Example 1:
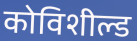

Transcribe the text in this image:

कोविशील्ड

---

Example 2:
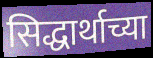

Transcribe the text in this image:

सिद्धार्थाच्या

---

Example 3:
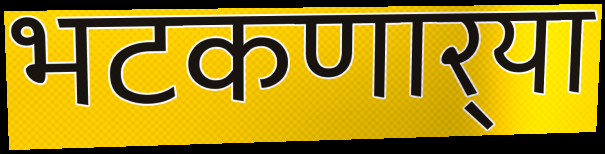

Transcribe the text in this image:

भटकणार्‍या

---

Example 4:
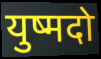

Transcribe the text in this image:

युष्मदो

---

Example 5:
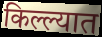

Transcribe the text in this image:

किल्ल्यात